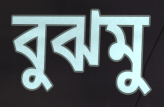
বুঝমু